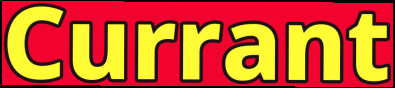
Currant